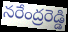
నరేంద్రరెడ్డి